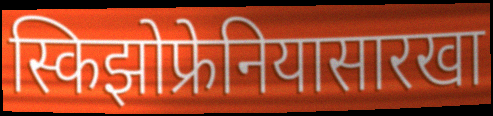
स्किझोफ्रेनियासारखा